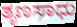
ತೃಣಸಾಧು